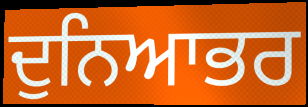
ਦੁਨਿਆਭਰ